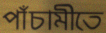
পাঁচামীতে